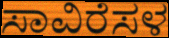
ಸಾವಿರೆಸಳ